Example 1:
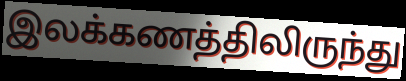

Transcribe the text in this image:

இலக்கணத்திலிருந்து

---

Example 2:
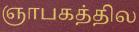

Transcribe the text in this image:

ஞாபகத்தில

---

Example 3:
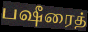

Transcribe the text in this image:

பஷீரைத்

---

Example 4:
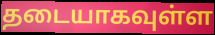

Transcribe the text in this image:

தடையாகவுள்ள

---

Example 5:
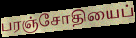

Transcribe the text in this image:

பரஞ்சோதியைப்